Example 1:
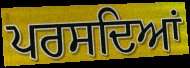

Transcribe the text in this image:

ਪਰਸਦਿਆਂ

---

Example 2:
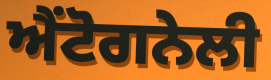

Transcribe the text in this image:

ਐਂਟੋਗਨੇਲੀ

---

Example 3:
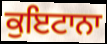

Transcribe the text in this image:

ਕੁਇਟਾਨਾ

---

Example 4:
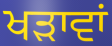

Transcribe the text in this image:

ਖੜਾਵਾਂ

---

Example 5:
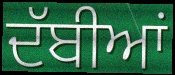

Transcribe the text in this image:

ਦੱਬੀਆਂ